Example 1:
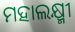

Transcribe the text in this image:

ମହାଲକ୍ଷ୍ମୀ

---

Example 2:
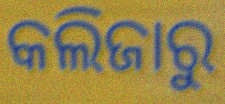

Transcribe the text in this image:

କଲିଜାରୁ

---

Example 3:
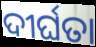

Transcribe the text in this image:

ଦୀର୍ଘତା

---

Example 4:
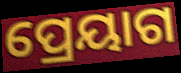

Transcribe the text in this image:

ପ୍ରେୟାଗ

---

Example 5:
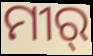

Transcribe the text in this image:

ମୀର୍